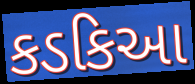
કડકિઆ